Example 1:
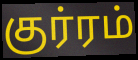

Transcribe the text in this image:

குர்ரம்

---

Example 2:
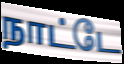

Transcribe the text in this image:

நாட்டே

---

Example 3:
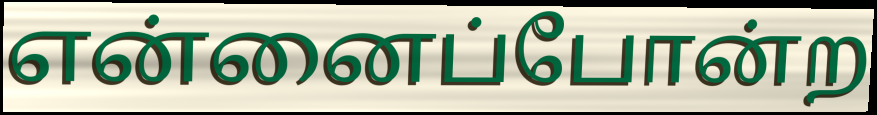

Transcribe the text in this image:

என்னைப்போன்ற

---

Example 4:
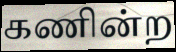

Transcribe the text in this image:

கணின்ற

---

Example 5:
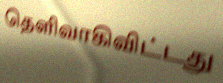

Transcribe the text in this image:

தெளிவாகிவிட்டது